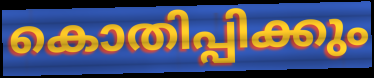
കൊതിപ്പിക്കും